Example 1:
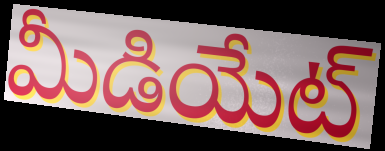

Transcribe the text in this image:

మీడియేట్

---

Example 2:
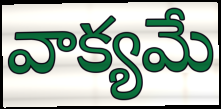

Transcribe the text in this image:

వాక్యమే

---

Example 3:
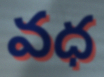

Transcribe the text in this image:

వధ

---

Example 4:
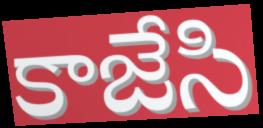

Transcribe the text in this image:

కాజేసి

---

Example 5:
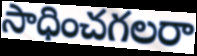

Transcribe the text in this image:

సాధించగలరా